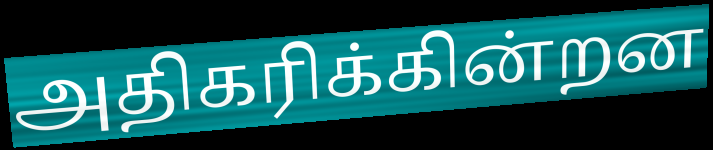
அதிகரிக்கின்றன